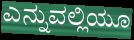
ಎನ್ನುವಲ್ಲಿಯೂ